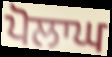
ਪੋਲਾਘ